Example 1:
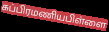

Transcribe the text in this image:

சுப்பிரமணியபிள்ளை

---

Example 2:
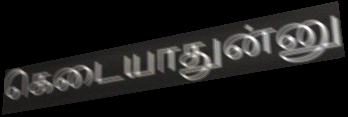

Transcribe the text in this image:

கெடையாதுன்னு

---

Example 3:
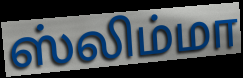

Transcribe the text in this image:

ஸ்லிம்மா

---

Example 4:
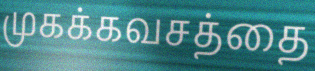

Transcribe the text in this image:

முகக்கவசத்தை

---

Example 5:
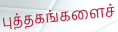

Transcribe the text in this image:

புத்தகங்களைச்